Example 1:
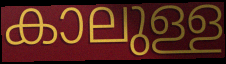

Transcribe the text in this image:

കാലുള്ള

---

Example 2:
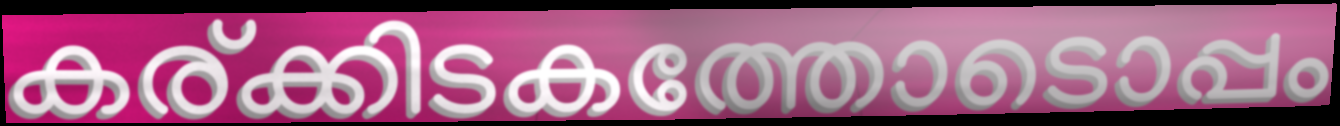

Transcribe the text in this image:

കര്ക്കിടകത്തോടൊപ്പം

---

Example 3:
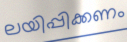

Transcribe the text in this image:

ലയിപ്പിക്കണം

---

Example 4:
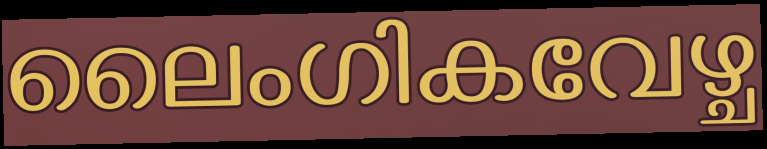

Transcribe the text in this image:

ലൈംഗികവേഴ്ച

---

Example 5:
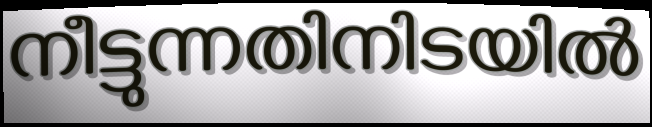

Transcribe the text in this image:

നീട്ടുന്നതിനിടയിൽ